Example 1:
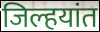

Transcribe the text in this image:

जिल्हयांत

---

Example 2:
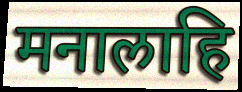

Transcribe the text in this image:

मनालाहि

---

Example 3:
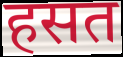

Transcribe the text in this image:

हसत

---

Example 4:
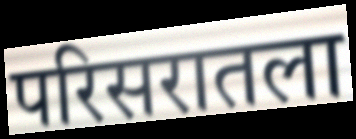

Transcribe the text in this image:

परिसरातला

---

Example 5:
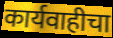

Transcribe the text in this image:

कार्यवाहीचा